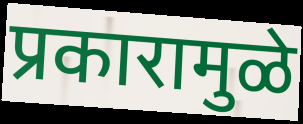
प्रकारामुळे